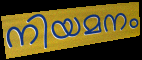
നിയമനം